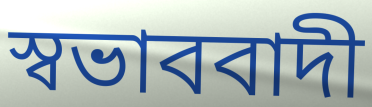
স্বভাববাদী